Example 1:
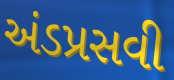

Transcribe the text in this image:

અંડપ્રસવી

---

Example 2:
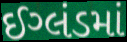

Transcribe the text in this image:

ઈગ્લંડમાં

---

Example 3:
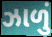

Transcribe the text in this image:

ઝાળું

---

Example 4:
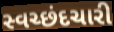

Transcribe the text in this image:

સ્વચ્છંદચારી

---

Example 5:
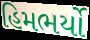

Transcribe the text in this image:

હિમભર્યો